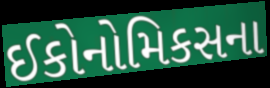
ઈકોનોમિકસના